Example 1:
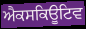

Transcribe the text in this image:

ਐਕਸਕਿਊਟਿਵ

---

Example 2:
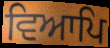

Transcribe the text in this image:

ਵਿਆਪਿ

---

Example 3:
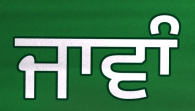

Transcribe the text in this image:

ਜਾਵਾੰ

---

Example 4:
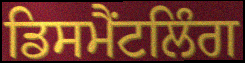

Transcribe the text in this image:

ਡਿਸਮੈਂਟਲਿੰਗ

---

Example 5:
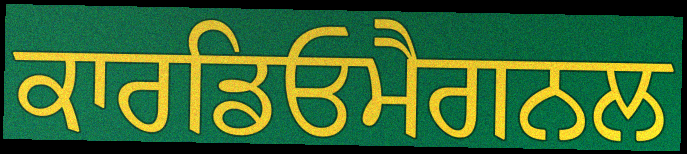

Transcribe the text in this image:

ਕਾਰਡਿਓਮੈਗਨਲ